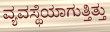
ವ್ಯವಸ್ಥೆಯಾಗುತ್ತಿತ್ತು